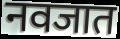
नवजात